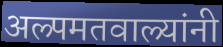
अल्पमतवाल्यांनी